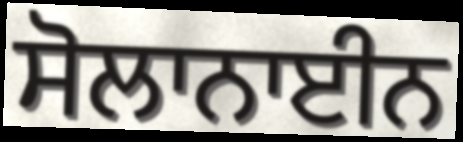
ਸੋਲਾਨਾਈਨ